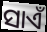
ସାଏଁ